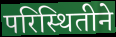
परिस्थितीने